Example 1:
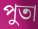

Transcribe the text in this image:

পুতা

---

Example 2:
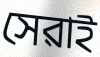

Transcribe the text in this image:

সেৱাই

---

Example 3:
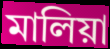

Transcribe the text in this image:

মালিয়া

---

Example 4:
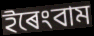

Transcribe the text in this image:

ইৰেংবাম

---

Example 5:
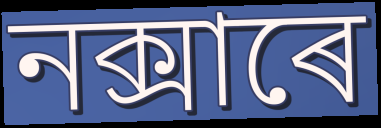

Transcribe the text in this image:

নক্সাৰে